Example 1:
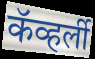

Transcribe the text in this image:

कॅव्हर्ली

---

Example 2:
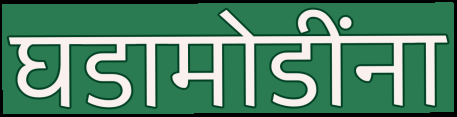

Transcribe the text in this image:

घडामोडींना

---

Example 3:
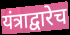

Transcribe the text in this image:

यंत्राद्वारेच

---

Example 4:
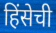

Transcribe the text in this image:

हिंसेची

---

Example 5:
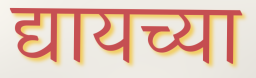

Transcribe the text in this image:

द्यायच्या